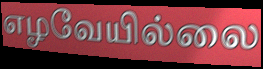
எழவேயில்லை